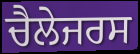
ਚੈਲੇਜਰਸ